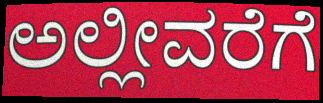
ಅಲ್ಲೀವರೆಗೆ